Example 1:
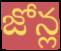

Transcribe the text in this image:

జోన్ల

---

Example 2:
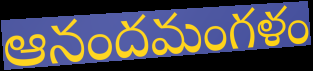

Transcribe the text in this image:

ఆనందమంగళం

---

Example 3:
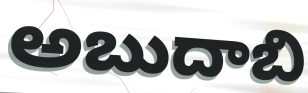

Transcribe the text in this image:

అబుదాబి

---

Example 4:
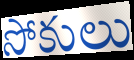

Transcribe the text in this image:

సోకులు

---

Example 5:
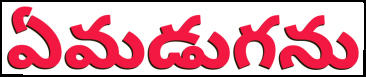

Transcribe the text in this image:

ఏమడుగను